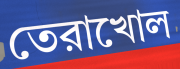
তেরাখোল